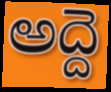
అద్దె